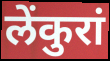
लेंकुरां